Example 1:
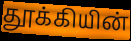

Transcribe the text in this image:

தூக்கியின்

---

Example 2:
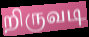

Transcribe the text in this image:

றிருவடி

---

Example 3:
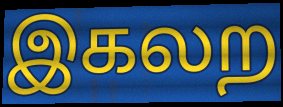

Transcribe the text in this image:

இகலற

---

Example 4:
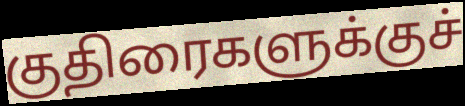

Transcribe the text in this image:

குதிரைகளுக்குச்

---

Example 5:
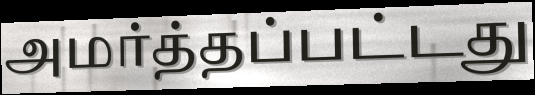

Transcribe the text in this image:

அமர்த்தப்பட்டது